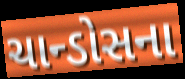
ચાન્ડોસના